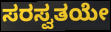
ಸರಸ್ವತಯೇ